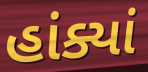
હાંક્યાં